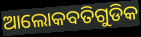
ଆଲୋକବତିଗୁଡିକ